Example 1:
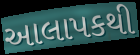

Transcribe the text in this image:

આલાપકથી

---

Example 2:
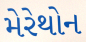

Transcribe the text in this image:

મેરેથોન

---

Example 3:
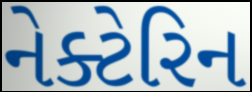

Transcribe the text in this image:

નેક્ટેરિન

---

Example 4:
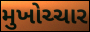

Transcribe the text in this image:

મુખોચ્ચાર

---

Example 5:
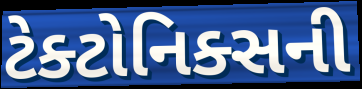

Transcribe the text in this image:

ટેક્ટોનિક્સની